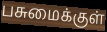
பசுமைக்குள்